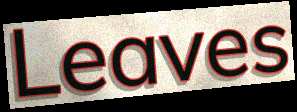
Leaves